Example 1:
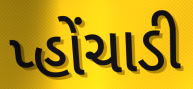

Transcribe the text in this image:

પ્હોંચાડી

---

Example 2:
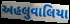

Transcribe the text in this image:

અહલુવાલિયા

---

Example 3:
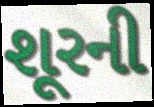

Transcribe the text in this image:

શૂરની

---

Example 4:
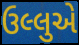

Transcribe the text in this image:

ઉલ્લુએ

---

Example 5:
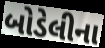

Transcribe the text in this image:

બોડેલીના